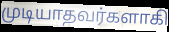
முடியாதவர்களாகி